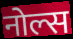
नोल्स